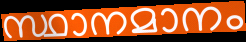
സ്ഥാനമാനം